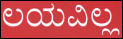
ಲಯವಿಲ್ಲ